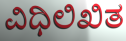
ವಿಧಿಲಿಖಿತ